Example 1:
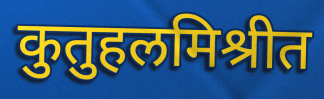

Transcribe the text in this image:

कुतुहलमिश्रीत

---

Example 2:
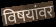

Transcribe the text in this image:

विषयांवर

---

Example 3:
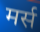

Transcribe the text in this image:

मर्स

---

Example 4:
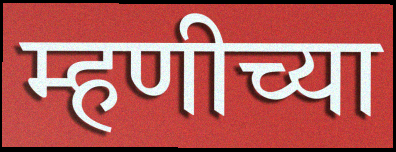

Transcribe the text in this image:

म्हणीच्या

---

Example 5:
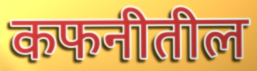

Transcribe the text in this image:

कफनीतील